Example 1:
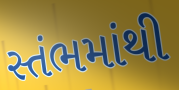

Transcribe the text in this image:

સ્તંભમાંથી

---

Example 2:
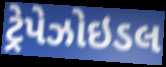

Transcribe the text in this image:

ટ્રેપેઝોઇડલ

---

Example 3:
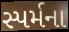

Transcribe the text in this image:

સ્પર્મના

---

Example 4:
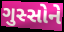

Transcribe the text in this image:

ગુસ્સોને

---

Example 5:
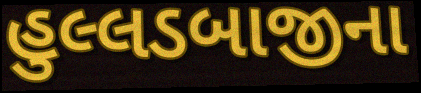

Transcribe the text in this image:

હુલ્લડબાજીના